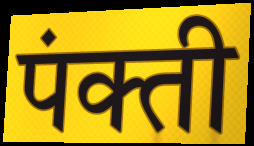
पंक्ती